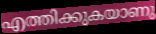
എത്തിക്കുകയാണു